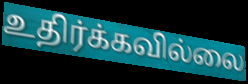
உதிர்க்கவில்லை